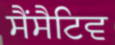
ਸੈਂਸੈਟਿਵ